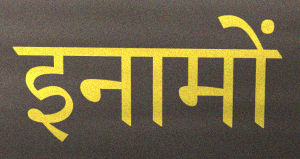
इनामों